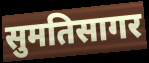
सुमतिसागर